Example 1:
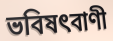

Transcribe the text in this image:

ভবিষৎবাণী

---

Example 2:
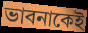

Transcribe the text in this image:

ভাবনাকেই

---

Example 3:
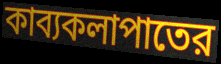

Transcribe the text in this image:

কাব্যকলাপাতের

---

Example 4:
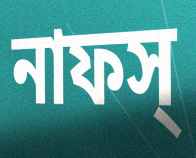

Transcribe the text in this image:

নাফস্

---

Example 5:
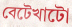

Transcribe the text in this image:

বেটেখাটো